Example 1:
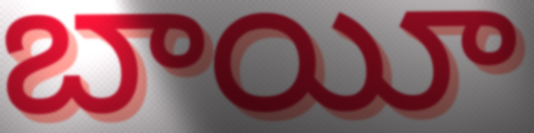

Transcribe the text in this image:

బాయీ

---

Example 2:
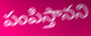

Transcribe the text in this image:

పంపిస్తానని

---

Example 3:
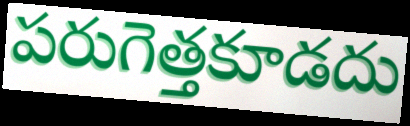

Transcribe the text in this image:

పరుగెత్తకూడదు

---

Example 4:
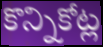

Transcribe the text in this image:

కొన్నికోట్ల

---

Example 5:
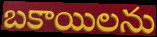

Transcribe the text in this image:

బకాయిలను